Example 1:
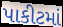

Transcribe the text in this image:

પાકીટમાં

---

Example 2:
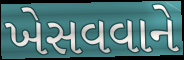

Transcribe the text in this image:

ખેસવવાને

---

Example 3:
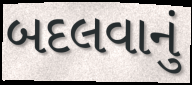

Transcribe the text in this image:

બદલવાનું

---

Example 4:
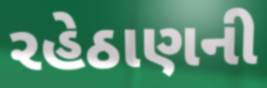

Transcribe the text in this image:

રહેઠાણની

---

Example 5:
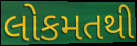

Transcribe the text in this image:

લોકમતથી